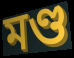
মণ্ড